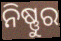
ନିଷ୍ଣୁର